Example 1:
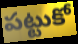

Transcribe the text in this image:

పట్టుకో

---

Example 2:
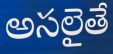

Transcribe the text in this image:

అసలైతే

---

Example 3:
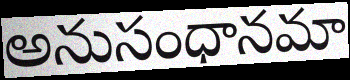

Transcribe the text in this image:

అనుసంధానమా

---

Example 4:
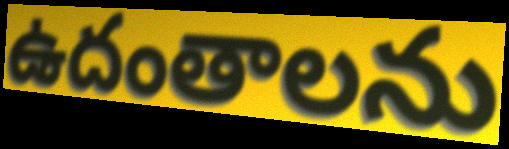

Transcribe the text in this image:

ఉదంతాలను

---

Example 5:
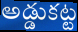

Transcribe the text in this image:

అడ్డుకట్ట